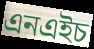
এনএইচ